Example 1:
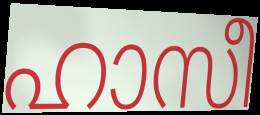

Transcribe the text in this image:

ഹാസീ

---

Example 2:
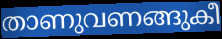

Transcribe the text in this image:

താണുവണങ്ങുകീ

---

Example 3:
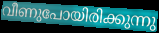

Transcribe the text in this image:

വീണുപോയിരിക്കുന്നു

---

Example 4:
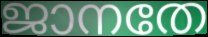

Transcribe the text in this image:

ജാനതേ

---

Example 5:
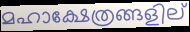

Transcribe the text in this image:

മഹാക്ഷേത്രങ്ങളില്